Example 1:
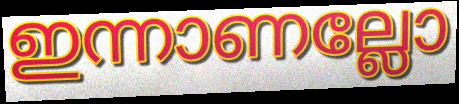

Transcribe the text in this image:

ഇന്നാണല്ലോ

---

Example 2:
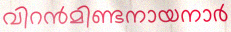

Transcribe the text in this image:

വിറൻമിണ്ടനായനാർ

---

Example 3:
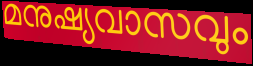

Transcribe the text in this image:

മനുഷ്യവാസവും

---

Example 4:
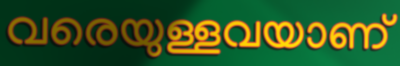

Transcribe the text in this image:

വരെയുള്ളവയാണ്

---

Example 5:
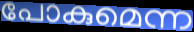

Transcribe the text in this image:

പോകുമെന്ന